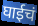
घाईचं